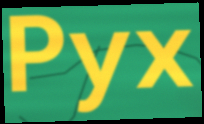
Pyx